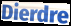
Dierdre